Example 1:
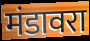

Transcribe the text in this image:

मंडावरा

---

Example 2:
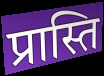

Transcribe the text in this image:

प्रास्ति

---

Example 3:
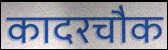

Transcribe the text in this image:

कादरचौक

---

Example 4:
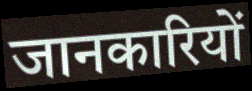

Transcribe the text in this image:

जानकारियों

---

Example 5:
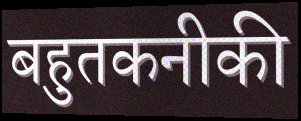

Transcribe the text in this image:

बहुतकनीकी